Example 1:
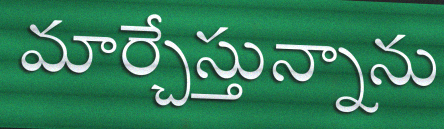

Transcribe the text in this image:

మార్చేస్తున్నాను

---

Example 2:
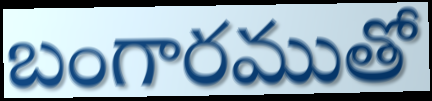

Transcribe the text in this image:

బంగారముతో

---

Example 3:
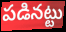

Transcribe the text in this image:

పడినట్టు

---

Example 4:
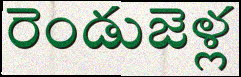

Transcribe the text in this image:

రెండుజెళ్ల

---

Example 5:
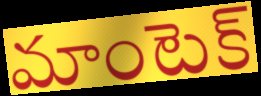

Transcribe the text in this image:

మాంటెక్